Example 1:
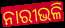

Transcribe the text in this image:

ନାରୀଭଳି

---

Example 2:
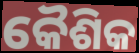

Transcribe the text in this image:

କୈଶିକ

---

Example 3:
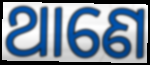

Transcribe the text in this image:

ଥାଣେ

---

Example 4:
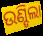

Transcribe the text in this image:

ଉଣ୍ଡିଲା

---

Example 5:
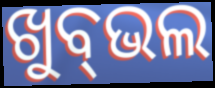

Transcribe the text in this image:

ଖୁବ୍‌ଭଲ